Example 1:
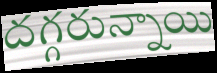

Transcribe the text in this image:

దగ్గరున్నాయి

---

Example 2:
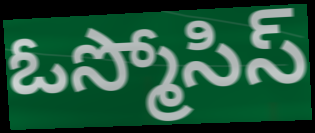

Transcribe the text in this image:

ఓస్మోసిస్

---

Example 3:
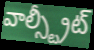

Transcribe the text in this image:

వాల్స్ట్రీట్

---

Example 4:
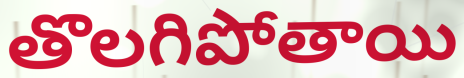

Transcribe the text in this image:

తొలగిపోతాయి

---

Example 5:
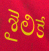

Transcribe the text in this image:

శైలికే